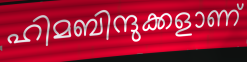
ഹിമബിന്ദുക്കളാണ്